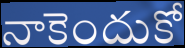
నాకెందుకో